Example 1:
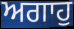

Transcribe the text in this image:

ਅਗਾਹੁ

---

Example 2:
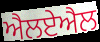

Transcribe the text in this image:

ਐਲਏਐਲ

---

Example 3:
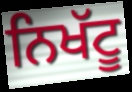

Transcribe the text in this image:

ਨਿਖੱਟੂ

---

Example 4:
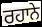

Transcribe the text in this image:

ਰਹਾਨੇ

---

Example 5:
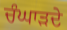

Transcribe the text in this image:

ਚੰਘਾੜਦੇ